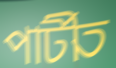
পাৰ্টীত